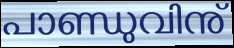
പാണ്ഡുവിനു്